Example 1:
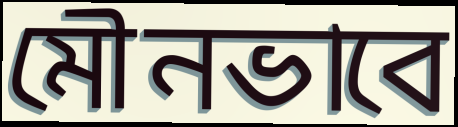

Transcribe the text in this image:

মৌনভাবে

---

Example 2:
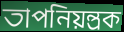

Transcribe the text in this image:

তাপনিয়ন্ত্রক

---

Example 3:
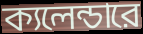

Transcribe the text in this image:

ক্যলেন্ডারে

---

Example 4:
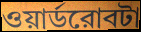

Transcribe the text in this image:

ওয়ার্ডরোবটা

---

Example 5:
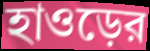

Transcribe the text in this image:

হাওড়ের